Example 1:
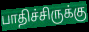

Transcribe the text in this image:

பாதிச்சிருக்கு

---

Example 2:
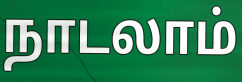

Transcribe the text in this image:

நாடலாம்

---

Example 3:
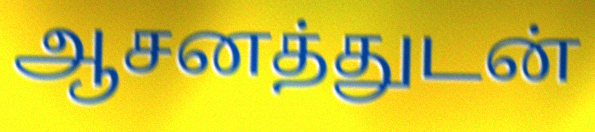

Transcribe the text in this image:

ஆசனத்துடன்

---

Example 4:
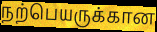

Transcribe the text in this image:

நற்பெயருக்கான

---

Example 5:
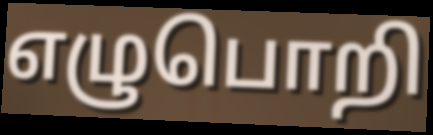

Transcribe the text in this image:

எழுபொறி